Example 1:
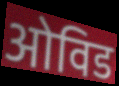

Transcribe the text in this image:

ओविड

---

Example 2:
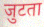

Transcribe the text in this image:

जुटता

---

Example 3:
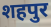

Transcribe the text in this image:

शहपुर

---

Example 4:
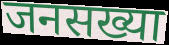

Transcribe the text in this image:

जनसख्या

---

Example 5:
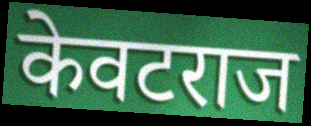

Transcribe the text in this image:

केवटराज